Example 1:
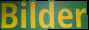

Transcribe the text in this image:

Bilder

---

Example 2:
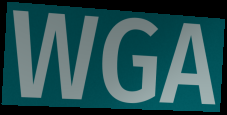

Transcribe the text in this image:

WGA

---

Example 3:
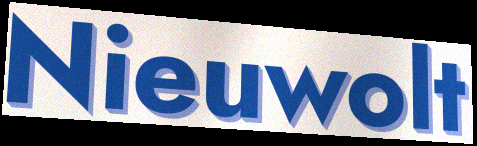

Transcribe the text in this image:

Nieuwolt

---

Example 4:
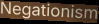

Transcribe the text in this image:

Negationism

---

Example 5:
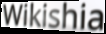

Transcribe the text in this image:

Wikishia